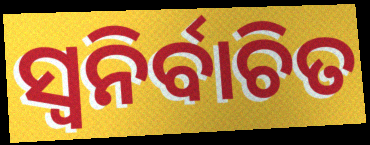
ସ୍ବନିର୍ବାଚିତ